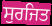
ਸੁਰਜਿਤ